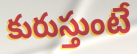
కురుస్తుంటే